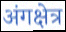
अंगक्षेत्र